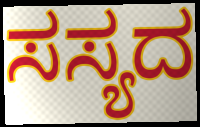
ಸಸ್ಯದ